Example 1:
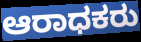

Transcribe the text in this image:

ಆರಾಧಕರು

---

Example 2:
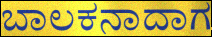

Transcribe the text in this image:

ಬಾಲಕನಾದಾಗ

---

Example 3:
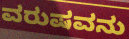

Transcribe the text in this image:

ವರುಷವನು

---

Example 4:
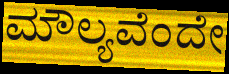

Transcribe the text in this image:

ಮೌಲ್ಯವೆಂದೇ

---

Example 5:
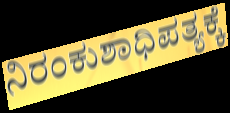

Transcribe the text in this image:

ನಿರಂಕುಶಾಧಿಪತ್ಯಕ್ಕೆ